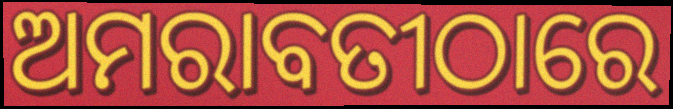
ଅମରାବତୀଠାରେ